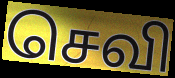
செவி